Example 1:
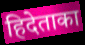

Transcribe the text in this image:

हिदेताका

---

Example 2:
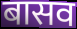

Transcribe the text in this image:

बासव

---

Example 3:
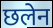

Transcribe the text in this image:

छलेन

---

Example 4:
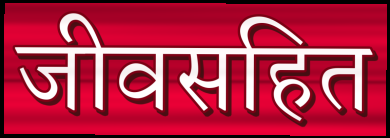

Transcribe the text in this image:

जीवसहित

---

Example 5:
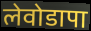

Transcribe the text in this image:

लेवोडापा